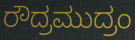
ರೌದ್ರಮುದ್ರಂ